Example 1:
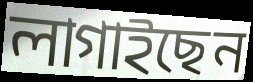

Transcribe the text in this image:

লাগাইছেন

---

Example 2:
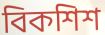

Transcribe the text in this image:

বিকশিশ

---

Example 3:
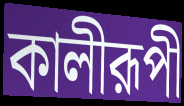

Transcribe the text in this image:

কালীরূপী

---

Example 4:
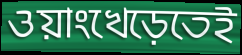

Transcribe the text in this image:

ওয়াংখেড়েতেই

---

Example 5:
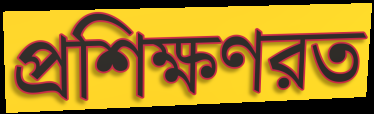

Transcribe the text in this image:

প্রশিক্ষণরত